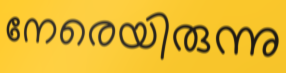
നേരെയിരുന്നു